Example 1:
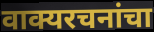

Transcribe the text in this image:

वाक्यरचनांचा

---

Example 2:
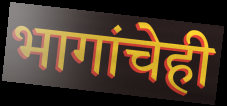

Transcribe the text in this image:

भागांचेही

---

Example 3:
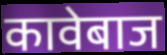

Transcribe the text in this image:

कावेबाज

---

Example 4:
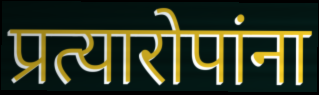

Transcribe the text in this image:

प्रत्यारोपांना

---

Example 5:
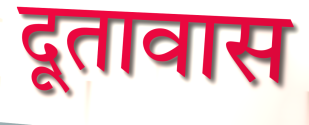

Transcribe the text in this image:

दूतावास